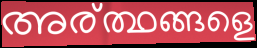
അര്ത്ഥങ്ങളെ